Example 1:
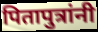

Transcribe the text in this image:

पितापुत्रांनी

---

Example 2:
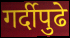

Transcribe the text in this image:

गर्दीपुढे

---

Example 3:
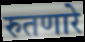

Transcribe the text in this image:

रुतणारे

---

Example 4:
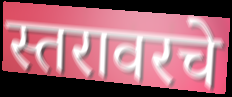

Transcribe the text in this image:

स्तरावरचे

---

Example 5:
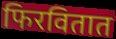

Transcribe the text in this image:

फिरवितात